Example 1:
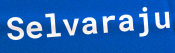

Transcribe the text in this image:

Selvaraju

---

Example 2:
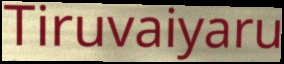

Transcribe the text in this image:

Tiruvaiyaru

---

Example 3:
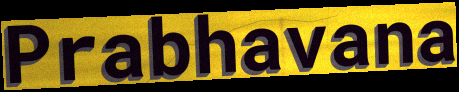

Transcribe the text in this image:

Prabhavana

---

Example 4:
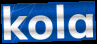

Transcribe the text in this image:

kola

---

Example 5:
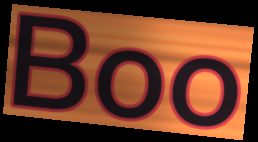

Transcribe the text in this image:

Boo